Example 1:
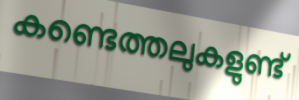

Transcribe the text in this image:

കണ്ടെത്തലുകളുണ്ട്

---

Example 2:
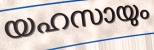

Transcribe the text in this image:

യഹസായും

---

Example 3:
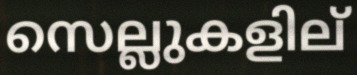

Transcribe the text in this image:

സെല്ലുകളില്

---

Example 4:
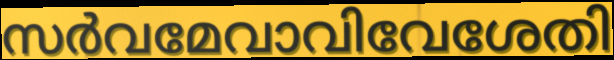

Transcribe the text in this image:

സർവമേവാവിവേശേതി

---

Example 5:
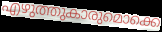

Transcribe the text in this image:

എഴുത്തുകാരുമൊക്കെ